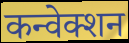
कन्वेक्शन